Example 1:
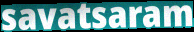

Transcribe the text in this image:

savatsaram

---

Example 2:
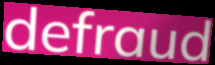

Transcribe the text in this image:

defraud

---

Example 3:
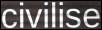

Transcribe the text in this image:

civilise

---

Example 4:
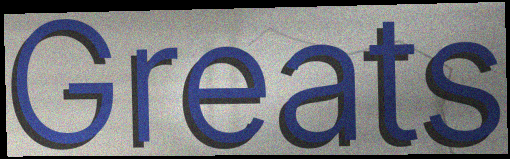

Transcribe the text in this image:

Greats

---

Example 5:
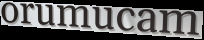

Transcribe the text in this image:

orumucam